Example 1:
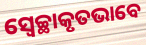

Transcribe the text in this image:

ସ୍ୱେଚ୍ଛାକୃତଭାବେ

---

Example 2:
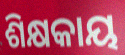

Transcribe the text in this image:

ଶିକ୍ଷକାୟ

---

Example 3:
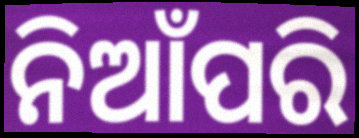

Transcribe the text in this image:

ନିଆଁପରି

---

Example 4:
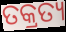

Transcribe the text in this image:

ତକ୍ରତ୍ୟ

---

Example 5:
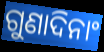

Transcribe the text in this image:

ଗୁଣାଦିନାଂ